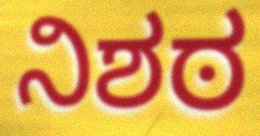
ನಿಶಠ